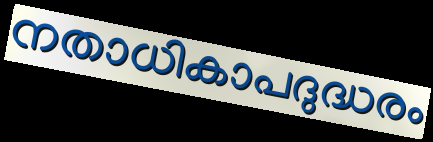
നതാധികാപദുദ്ധരം